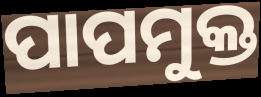
ପାପମୁକ୍ତ